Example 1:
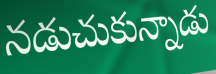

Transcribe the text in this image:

నడుచుకున్నాడు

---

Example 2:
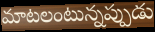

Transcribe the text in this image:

మాటలంటున్నప్పుడు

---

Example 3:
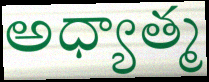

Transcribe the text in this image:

అధ్యాత్మ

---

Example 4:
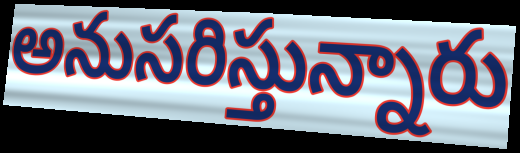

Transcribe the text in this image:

అనుసరిస్తున్నారు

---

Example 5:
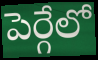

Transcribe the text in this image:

పెర్గేలో